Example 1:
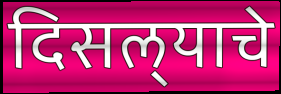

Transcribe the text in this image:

दिसल्याचे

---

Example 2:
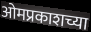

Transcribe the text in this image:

ओमप्रकाशच्या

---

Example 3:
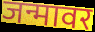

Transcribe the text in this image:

जन्मावर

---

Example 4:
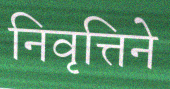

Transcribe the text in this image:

निवृत्तिने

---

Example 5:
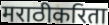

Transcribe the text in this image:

मराठीकरिता